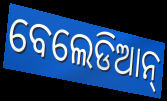
ବେଲେଡିଆନ୍